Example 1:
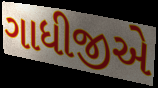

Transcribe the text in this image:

ગાધીજીએ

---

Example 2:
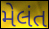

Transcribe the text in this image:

મેલંત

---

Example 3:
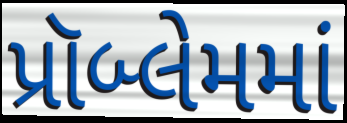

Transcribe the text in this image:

પ્રૉબ્લેમમાં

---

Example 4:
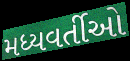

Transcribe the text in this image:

મધ્યવર્તીઓ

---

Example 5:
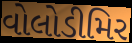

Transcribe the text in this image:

વોલોડીમિર